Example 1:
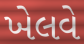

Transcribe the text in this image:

ખેલવે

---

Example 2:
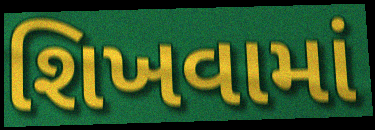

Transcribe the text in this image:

શિખવામાં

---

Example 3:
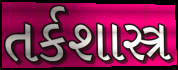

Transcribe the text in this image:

તર્કશાસ્ત્ર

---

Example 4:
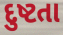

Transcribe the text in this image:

દુષ્ટતા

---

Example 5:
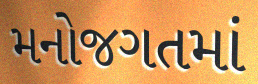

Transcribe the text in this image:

મનોજગતમાં